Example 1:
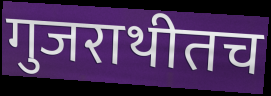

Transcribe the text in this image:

गुजराथीतच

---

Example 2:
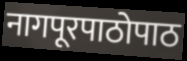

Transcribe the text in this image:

नागपूरपाठोपाठ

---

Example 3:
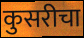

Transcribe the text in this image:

कुसरीचा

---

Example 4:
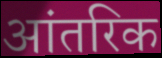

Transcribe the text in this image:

आंतरिक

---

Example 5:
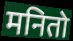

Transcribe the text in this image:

मनितो